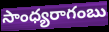
సాంధ్యరాగంబు